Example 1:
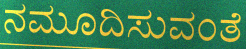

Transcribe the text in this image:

ನಮೂದಿಸುವಂತೆ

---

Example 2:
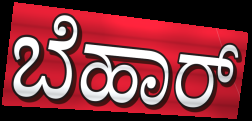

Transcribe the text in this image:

ಬೆಹಾರ್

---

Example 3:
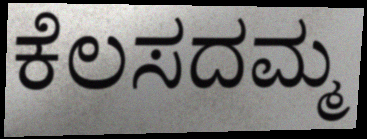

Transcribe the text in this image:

ಕೆಲಸದಮ್ಮ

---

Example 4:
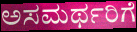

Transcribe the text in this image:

ಅಸಮರ್ಥರಿಗೆ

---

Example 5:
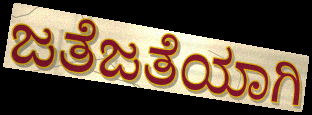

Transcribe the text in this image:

ಜತೆಜತೆಯಾಗಿ